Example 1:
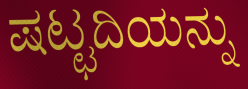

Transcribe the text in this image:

ಷಟ್ಟದಿಯನ್ನು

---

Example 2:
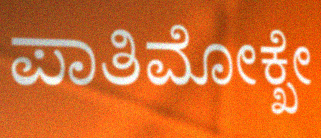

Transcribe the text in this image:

ಪಾತಿಮೋಕ್ಖೇ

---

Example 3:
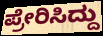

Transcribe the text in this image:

ಪ್ರೇರಿಸಿದ್ದು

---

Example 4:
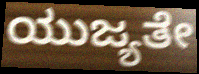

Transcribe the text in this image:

ಯುಜ್ಯತೇ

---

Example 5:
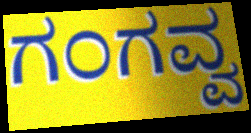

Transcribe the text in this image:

ಗಂಗವ್ವ